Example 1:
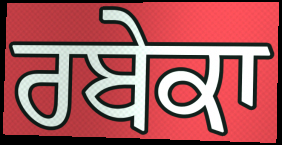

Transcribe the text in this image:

ਰਬੇਕਾ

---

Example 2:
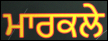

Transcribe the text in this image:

ਮਾਰਕਲੇ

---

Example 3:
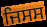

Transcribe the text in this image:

ਜਿਸਸ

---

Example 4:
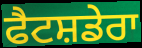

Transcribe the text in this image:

ਫੈਟਸ਼ਡੇਰਾ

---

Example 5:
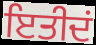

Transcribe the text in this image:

ਇਤੀਦਂ